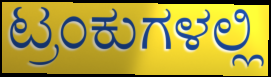
ಟ್ರಂಕುಗಳಲ್ಲಿ